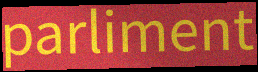
parliment